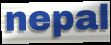
nepal